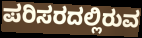
ಪರಿಸರದಲ್ಲಿರುವ